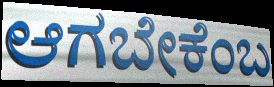
ಆಗಬೇಕೆಂಬ